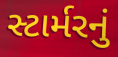
સ્ટાર્મરનું